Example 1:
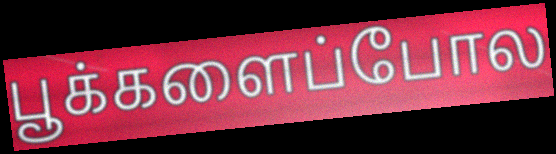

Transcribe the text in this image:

பூக்களைப்போல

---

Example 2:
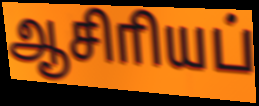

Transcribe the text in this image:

ஆசிரியப்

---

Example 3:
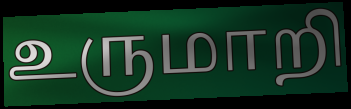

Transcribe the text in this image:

உருமாறி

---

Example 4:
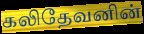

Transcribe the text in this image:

கலிதேவனின்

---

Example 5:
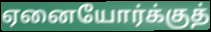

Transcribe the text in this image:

ஏனையோர்க்குத்